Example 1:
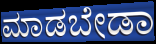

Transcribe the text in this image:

ಮಾಡಬೇಡಾ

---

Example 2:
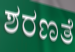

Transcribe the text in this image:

ಶರಣತೆ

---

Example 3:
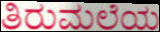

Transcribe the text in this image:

ತಿರುಮಲೆಯ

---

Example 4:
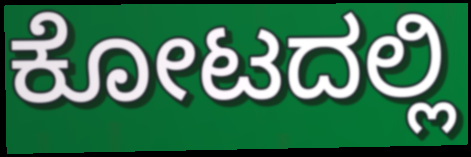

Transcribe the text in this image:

ಕೋಟದಲ್ಲಿ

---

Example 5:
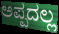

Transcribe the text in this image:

ಅಪ್ಪದಲ್ಲ